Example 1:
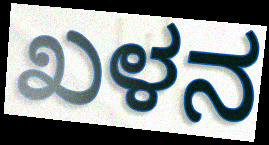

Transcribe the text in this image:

ಖಳನ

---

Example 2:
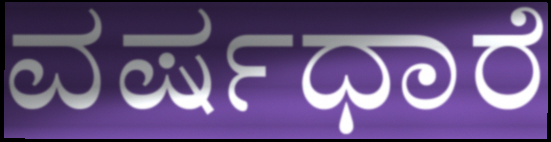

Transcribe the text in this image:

ವರ್ಷಧಾರೆ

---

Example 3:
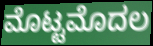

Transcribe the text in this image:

ಮೊಟ್ಟಮೊದಲ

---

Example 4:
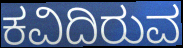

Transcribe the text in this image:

ಕವಿದಿರುವ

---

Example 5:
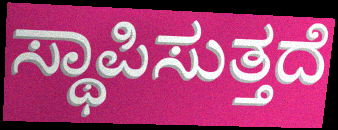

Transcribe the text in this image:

ಸ್ಥಾಪಿಸುತ್ತದೆ